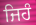
ਜਿਹੰ